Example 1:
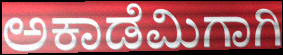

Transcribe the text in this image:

ಅಕಾಡೆಮಿಗಾಗಿ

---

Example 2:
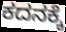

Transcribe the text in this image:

ಕದನಕ್ಕೆ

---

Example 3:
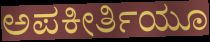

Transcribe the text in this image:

ಅಪಕೀರ್ತಿಯೂ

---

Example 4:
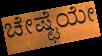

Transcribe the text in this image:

ಚೇಷ್ಟೆಯೇ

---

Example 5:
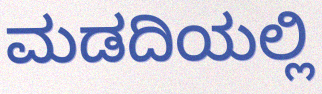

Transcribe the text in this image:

ಮಡದಿಯಲ್ಲಿ